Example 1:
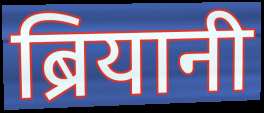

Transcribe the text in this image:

ब्रियानी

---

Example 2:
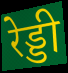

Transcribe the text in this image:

रेड्डी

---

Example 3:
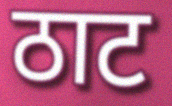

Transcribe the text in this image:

ठाट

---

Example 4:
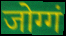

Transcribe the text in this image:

जोग्गं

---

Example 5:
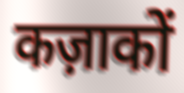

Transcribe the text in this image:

कज़ाकों